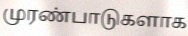
முரண்பாடுகளாக